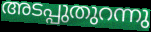
അടപ്പുതുറന്നു